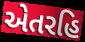
એતરહિ